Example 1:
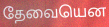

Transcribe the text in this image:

தேவையென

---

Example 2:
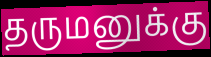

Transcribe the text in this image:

தருமனுக்கு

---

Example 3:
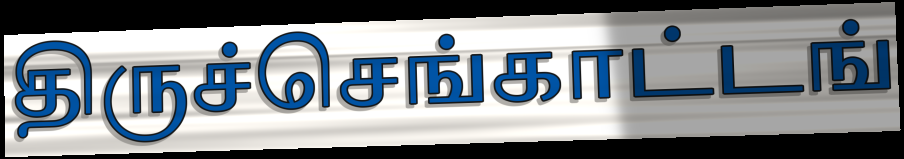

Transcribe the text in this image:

திருச்செங்காட்டங்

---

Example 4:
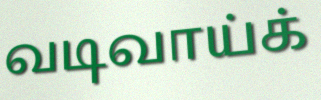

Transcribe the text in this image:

வடிவாய்க்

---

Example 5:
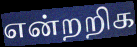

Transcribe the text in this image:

என்றறிக